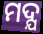
ମଦ୍ଯ